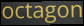
octagon